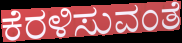
ಕೆರಳಿಸುವಂತೆ